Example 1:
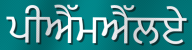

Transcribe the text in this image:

ਪੀਐੱਮਐੱਲਏ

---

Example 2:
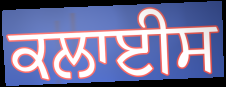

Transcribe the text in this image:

ਕਲਾਈਸ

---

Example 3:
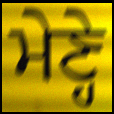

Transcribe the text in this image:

ਮੇਣ੍ਹੇ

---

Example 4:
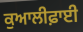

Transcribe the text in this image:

ਕੁਆਲੀਫ਼ਾਈ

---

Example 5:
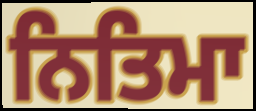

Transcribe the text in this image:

ਨਿਤਿਮਾ